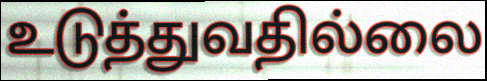
உடுத்துவதில்லை